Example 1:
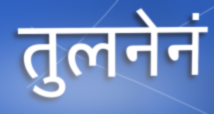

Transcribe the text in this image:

तुलनेनं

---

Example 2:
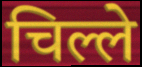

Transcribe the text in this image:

चिल्ले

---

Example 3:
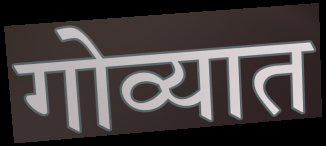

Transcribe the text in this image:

गोव्यात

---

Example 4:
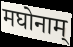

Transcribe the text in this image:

मघोनाम्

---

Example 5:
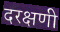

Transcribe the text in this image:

दरक्षणी